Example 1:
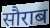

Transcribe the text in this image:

सौराब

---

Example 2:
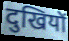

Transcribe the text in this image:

दुखियों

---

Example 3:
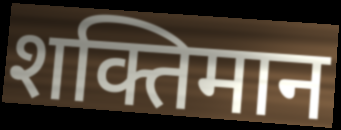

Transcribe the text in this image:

शक्तिमान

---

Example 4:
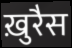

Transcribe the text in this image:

ख़ुरैस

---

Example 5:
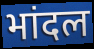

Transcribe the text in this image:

भांदल